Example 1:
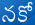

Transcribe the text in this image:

నకో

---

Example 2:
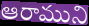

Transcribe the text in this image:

ఆరాముని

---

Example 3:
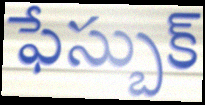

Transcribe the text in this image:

ఫేస్బుక్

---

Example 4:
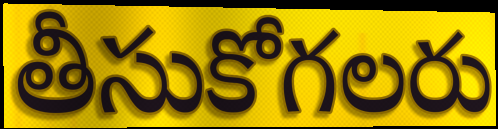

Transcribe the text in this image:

తీసుకోగలరు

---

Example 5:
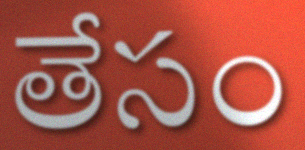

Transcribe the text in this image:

తేసం